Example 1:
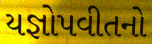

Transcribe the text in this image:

યજ્ઞોપવીતનો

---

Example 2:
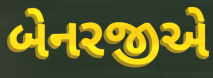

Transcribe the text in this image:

બેનરજીએ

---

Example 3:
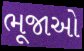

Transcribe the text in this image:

ભૂજાઓ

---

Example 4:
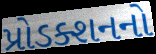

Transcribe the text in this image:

પ્રોડક્શનનો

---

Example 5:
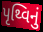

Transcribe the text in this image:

પૃથ્વિનું